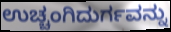
ಉಚ್ಚಂಗಿದುರ್ಗವನ್ನು